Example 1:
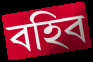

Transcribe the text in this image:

বহিব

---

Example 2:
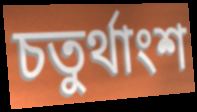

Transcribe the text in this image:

চতুর্থাংশ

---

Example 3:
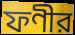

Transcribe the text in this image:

ফণীর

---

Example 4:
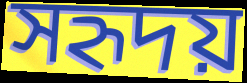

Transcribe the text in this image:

সহৃদয়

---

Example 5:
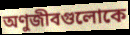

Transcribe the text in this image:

অণুজীবগুলোকে